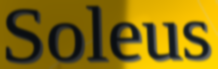
Soleus